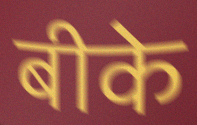
बीके